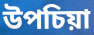
উপচিয়া